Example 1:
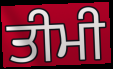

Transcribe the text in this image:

ਤੀਮੀ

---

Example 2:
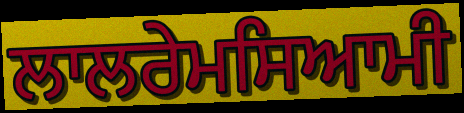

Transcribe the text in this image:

ਲਾਲਰੇਮਸਿਆਮੀ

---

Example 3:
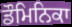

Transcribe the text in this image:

ਡੌਮਿਨਿਕਾ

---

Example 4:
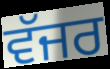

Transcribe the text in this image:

ਵੱਜਰ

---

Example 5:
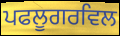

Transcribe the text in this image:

ਪਫਲੂਗਰਵਿਲ